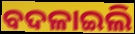
ବଦଳାଇଲି